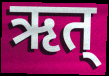
ऋत्